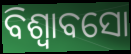
ବିଶ୍ୱାବସୋ